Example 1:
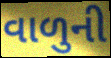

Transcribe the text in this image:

વાળુની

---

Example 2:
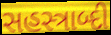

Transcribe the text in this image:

સહસ્ત્રાબ્દી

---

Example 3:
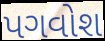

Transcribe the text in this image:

પગવોશ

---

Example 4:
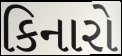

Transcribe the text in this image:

કિનારો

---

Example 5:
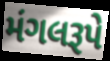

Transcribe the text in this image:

મંગલરૂપે